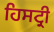
ਹਿਸਟ੍ਰੀ